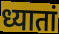
ध्यातां